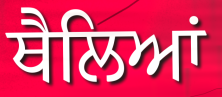
ਥੈਲਿਆਂ